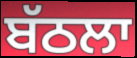
ਬੱਠਲਾ